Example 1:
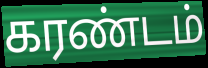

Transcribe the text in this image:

கரண்டம்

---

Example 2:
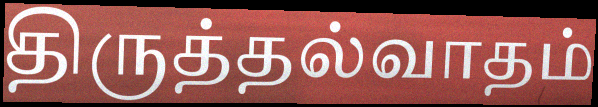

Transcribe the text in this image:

திருத்தல்வாதம்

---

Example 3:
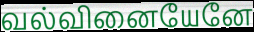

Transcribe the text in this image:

வல்வினையேனே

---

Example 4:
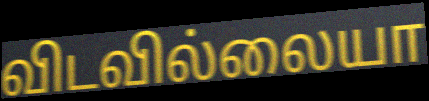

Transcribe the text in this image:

விடவில்லையா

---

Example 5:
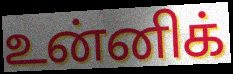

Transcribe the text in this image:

உன்னிக்